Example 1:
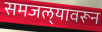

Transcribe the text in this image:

समजल्यावरून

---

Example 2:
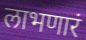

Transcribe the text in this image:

लाभणारं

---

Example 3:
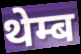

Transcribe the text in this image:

थेम्ब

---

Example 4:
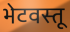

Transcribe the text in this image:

भेटवस्तू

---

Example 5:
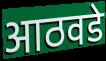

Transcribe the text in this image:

आठवडे